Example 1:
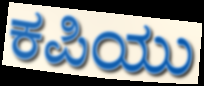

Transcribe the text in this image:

ಕಪಿಯು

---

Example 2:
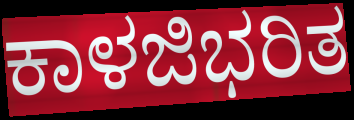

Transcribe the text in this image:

ಕಾಳಜಿಭರಿತ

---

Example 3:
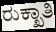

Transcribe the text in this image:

ರುಕ್ಖಾತಿ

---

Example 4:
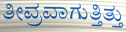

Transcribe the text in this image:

ತೀವ್ರವಾಗುತ್ತಿತ್ತು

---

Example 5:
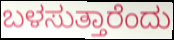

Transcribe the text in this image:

ಬಳಸುತ್ತಾರೆಂದು